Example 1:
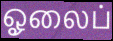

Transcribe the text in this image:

ஓலைப்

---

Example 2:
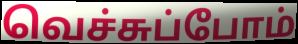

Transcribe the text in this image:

வெச்சுப்போம்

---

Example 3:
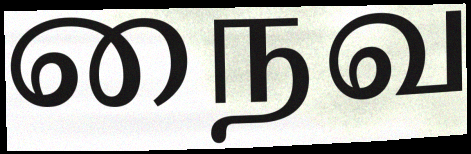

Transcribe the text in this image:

நைவ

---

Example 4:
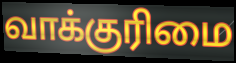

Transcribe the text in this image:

வாக்குரிமை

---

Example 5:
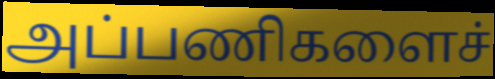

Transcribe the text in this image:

அப்பணிகளைச்